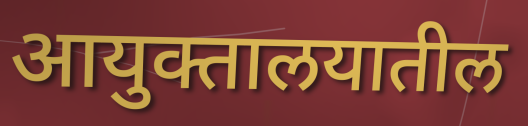
आयुक्तालयातील